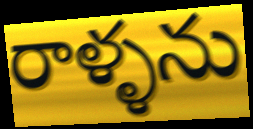
రాళ్ళను